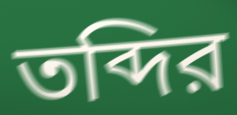
তব্দির